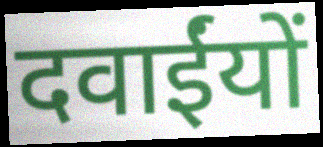
दवाईंयों